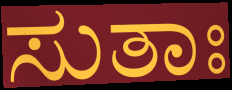
ಸುತಾಃ